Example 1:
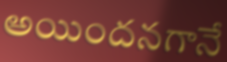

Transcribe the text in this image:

అయిందనగానే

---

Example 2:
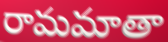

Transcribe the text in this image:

రామమాతా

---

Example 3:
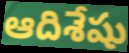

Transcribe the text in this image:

ఆదిశేషు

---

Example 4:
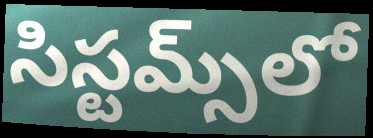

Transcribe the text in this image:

సిస్టమ్స్‌లో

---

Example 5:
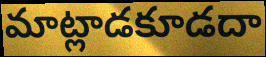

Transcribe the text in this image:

మాట్లాడకూడదా